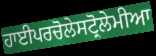
ਹਾਈਪਰਚੋਲੇਸਟ੍ਰੋਲੇਮੀਆ